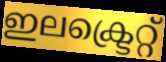
ഇലക്ട്രെറ്റ്